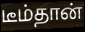
டீம்தான்